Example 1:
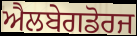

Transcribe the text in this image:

ਐਲਬੇਗਡੋਰਜ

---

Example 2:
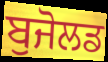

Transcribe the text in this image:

ਬੁਜੋਲਡ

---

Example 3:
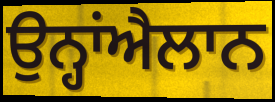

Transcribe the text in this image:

ਉਨ੍ਹਾਂਐਲਾਨ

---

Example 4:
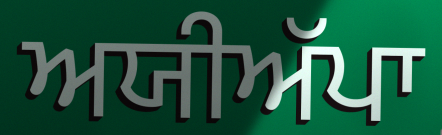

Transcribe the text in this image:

ਅਯੀਅੱਪਾ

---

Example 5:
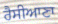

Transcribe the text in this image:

ਰੈਸੀਆਣਾ